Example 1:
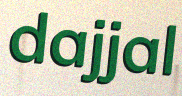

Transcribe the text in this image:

dajjal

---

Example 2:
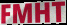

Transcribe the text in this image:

FMHT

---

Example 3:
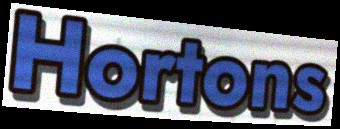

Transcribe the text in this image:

Hortons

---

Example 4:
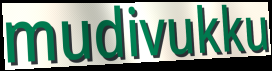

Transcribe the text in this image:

mudivukku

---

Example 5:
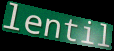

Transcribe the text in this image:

lentil